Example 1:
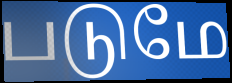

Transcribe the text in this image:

படுமே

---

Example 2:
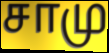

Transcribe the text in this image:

சாமு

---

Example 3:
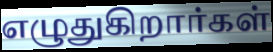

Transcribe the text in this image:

எழுதுகிறார்கள்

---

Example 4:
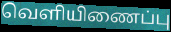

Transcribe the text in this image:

வெளியிணைப்பு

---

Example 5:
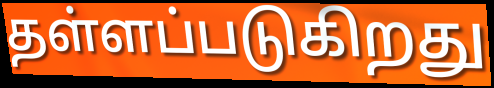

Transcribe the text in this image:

தள்ளப்படுகிறது